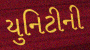
યુનિટીની